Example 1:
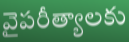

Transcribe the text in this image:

వైపరీత్యాలకు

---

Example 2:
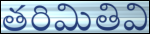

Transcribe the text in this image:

తరిమితివి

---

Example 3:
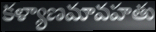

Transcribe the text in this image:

కళ్యాణమావహతు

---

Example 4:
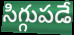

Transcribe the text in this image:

సిగ్గుపడే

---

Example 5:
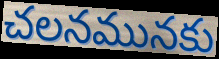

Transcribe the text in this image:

చలనమునకు